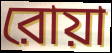
রোয়া